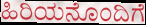
ಹಿರಿಯನೊಂದಿಗೆ